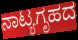
ನಾಟ್ಯಗೃಹದ